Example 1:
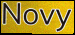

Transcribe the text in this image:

Novy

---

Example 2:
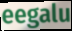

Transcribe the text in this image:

eegalu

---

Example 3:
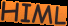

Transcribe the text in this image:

HIML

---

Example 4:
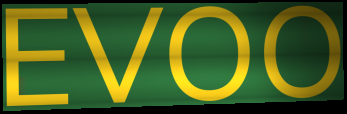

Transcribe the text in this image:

EVOO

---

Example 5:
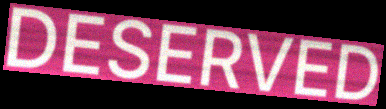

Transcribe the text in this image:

DESERVED